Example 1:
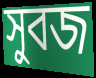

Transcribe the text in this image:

সুবজ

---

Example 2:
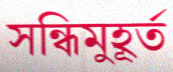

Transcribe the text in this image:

সন্ধিমুহূর্ত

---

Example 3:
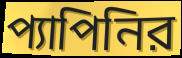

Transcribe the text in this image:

প্যাপিনির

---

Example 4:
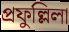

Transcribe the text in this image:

প্রফুল্লিলা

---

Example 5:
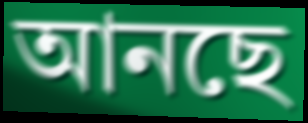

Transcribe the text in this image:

আনছে